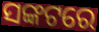
ସଙ୍କଟରେ